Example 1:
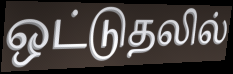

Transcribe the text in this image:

ஒட்டுதலில்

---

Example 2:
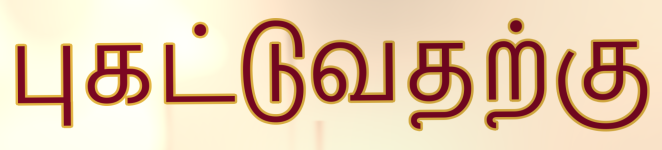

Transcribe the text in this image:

புகட்டுவதற்கு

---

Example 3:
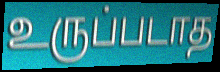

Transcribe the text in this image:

உருப்படாத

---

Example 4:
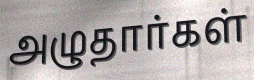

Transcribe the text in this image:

அழுதார்கள்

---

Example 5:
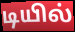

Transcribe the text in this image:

டியில்